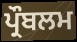
ਪ੍ਰੌਬਲਮ